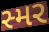
સ્મર